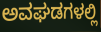
ಅವಘಡಗಳಲ್ಲಿ